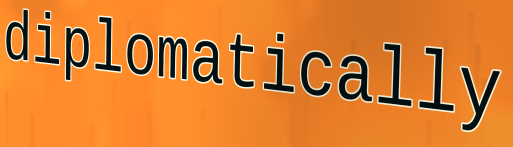
diplomatically